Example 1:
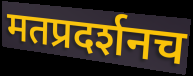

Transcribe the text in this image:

मतप्रदर्शनच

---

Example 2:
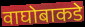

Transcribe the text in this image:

वाघोबाकडे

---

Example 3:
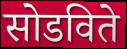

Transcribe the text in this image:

सोडविते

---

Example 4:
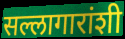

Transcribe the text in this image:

सल्लागारांशी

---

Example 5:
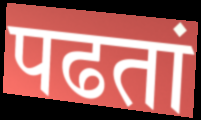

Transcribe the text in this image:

पढतां